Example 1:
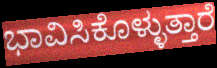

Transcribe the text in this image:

ಭಾವಿಸಿಕೊಳ್ಳುತ್ತಾರೆ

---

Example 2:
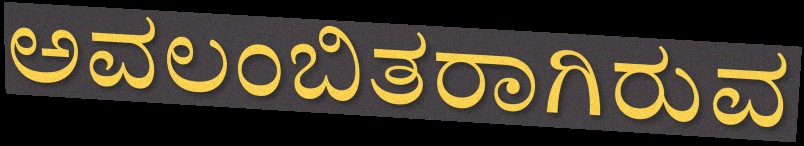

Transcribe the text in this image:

ಅವಲಂಬಿತರಾಗಿರುವ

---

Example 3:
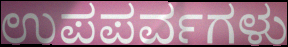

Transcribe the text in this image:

ಉಪಪರ್ವಗಳು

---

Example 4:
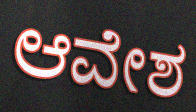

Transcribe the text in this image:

ಆವೇಶ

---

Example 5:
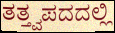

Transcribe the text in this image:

ತತ್ತ್ವಪದದಲ್ಲಿ